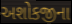
અશોકજીના